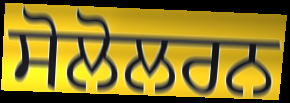
ਸੋਲੋਲਰਨ